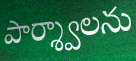
పార్శ్వాలను